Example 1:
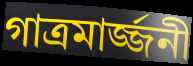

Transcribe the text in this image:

গাত্রমার্জ্জনী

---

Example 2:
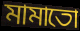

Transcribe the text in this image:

মামাতো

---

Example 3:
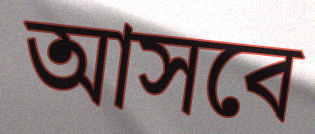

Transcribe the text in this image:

আসবে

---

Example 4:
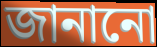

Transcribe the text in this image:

জানানো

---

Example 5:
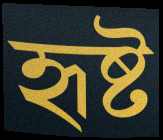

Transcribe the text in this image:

হৃষ্ট